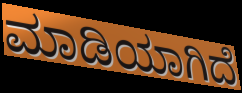
ಮಾಡಿಯಾಗಿದೆ